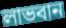
লাভবান